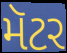
મૅટર